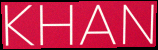
KHAN